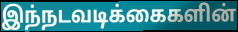
இந்நடவடிக்கைகளின்